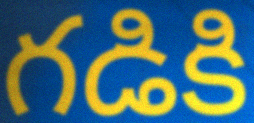
గడికి